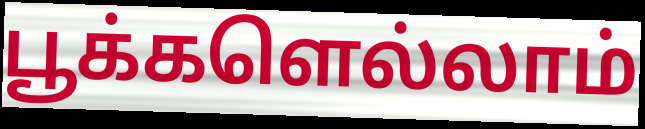
பூக்களெல்லாம்